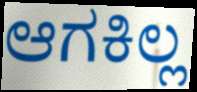
ಆಗಕಿಲ್ಲ